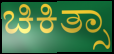
ಚಿಕಿತ್ಸಾ